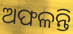
ଅଫଳନ୍ତି